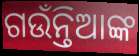
ଗଉଁନ୍ତିଆଙ୍କ